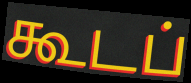
கூடப்